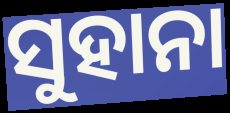
ସୁହାନା